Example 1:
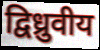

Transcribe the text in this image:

द्विध्रुवीय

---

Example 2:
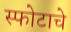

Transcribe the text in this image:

स्फोटाचे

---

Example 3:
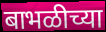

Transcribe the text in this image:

बाभळीच्या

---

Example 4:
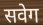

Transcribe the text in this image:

सवेग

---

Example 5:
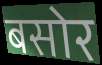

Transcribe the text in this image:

बसोर